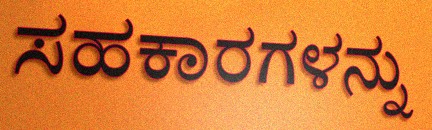
ಸಹಕಾರಗಳನ್ನು